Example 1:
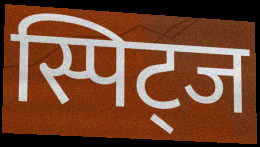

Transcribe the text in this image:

स्पिट्ज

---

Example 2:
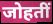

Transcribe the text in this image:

जोहतीं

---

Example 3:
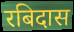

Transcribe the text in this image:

रबिदास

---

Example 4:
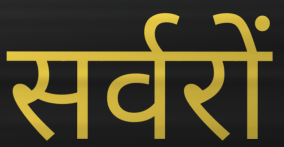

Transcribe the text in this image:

सर्वरों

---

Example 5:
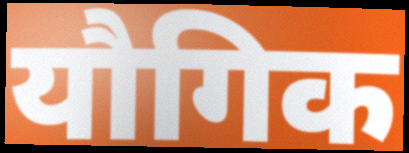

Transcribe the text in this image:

यौगिक